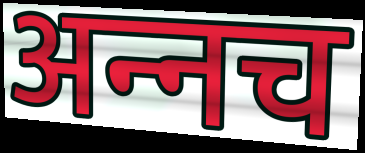
अन्नच